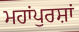
ਮਹਾਂਪੁਰਸ਼ਾਂ